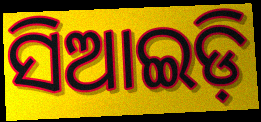
ସିଆଇଡ଼ି